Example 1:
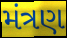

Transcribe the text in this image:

મંત્રણ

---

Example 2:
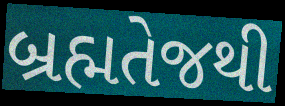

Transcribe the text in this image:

બ્રહ્મતેજથી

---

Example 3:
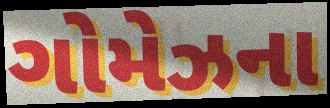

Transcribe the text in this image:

ગોમેઝના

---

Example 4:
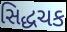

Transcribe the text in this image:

સિદ્ધચક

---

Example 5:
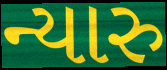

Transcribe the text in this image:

ન્યારુ